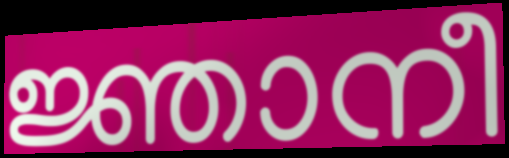
ജ്ഞാനീ